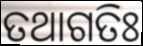
ତଥାଗତିଃ